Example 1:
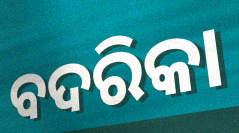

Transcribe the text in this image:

ବଦରିକା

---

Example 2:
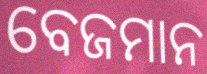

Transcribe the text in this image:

ବେଜମାନ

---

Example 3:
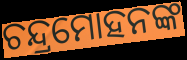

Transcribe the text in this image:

ଚନ୍ଦ୍ରମୋହନଙ୍କ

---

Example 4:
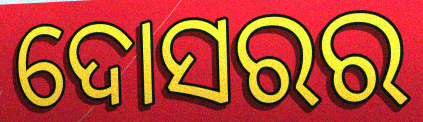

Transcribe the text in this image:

ଦୋସରର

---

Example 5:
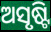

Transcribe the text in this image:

ଅସୃଷ୍ଟି